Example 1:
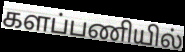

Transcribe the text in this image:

களப்பணியில்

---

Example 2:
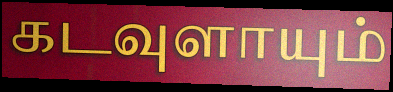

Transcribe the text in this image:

கடவுளாயும்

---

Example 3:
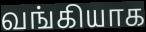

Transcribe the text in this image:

வங்கியாக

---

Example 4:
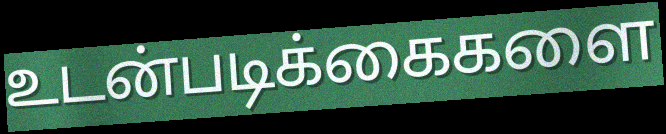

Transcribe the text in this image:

உடன்படிக்கைகளை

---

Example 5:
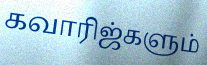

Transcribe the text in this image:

கவாரிஜ்களும்